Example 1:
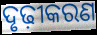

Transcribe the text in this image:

ଦୃଢ଼ୀକରଣ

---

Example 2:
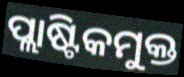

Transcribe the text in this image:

ପ୍ଲାଷ୍ଟିକମୁକ୍ତ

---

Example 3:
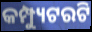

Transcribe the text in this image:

କମ୍ପ୍ୟୁଟରଟି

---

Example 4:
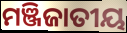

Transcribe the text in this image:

ମଞ୍ଜିଜାତୀୟ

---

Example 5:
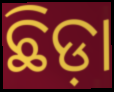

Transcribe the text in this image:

ଛିଡ଼ା